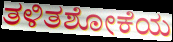
ತಳಿತಶೋಕೆಯ